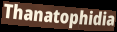
Thanatophidia